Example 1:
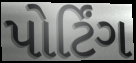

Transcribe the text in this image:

પોર્ટિંગ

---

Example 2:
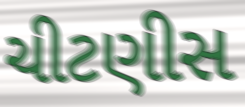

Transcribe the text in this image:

ચીટણીસ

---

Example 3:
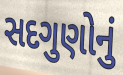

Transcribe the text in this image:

સદગુણોનું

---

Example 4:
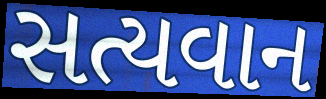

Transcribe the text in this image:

સત્યવાન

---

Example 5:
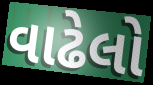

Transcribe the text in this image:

વાઢેલો